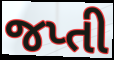
જપ્તી